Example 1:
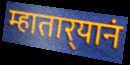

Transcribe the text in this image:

म्हातार्‍यानं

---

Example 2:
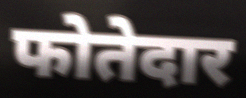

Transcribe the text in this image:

फोतेदार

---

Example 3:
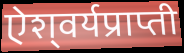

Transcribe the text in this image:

ऐश्वर्यप्राप्ती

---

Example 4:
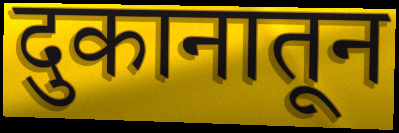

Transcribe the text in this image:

दुकानातून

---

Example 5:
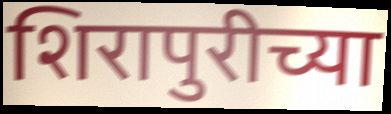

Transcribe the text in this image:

शिरापुरीच्या